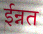
ईन्नत